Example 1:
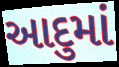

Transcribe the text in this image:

આદુમાં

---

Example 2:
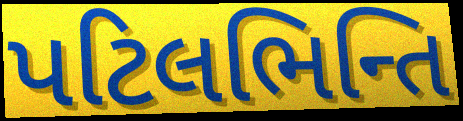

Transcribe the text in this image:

પટિલભિન્તિ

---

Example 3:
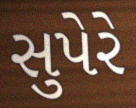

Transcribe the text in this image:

સુપેરે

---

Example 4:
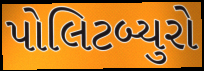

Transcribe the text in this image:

પોલિટબ્યુરો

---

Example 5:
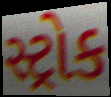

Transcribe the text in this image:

સ્ટ્રોક